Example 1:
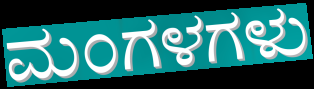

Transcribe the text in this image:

ಮಂಗಳಗಳು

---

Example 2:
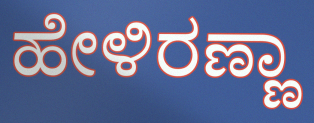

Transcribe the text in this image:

ಹೇಳಿರಣ್ಣಾ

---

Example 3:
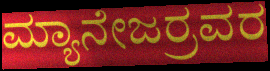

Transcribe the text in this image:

ಮ್ಯಾನೇಜರ್ರವರ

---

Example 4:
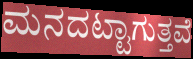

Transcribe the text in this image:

ಮನದಟ್ಟಾಗುತ್ತವೆ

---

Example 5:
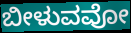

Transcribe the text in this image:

ಬೀಳುವವೋ